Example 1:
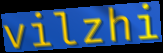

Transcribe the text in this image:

vilzhi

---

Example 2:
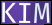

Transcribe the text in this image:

KIM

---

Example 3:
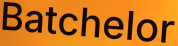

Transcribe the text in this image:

Batchelor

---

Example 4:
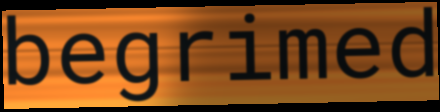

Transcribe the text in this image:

begrimed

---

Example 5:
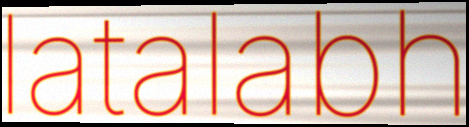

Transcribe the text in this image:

latalabh